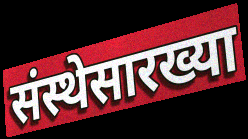
संस्थेसारख्या